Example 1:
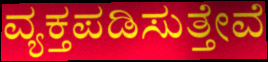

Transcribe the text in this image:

ವ್ಯಕ್ತಪಡಿಸುತ್ತೇವೆ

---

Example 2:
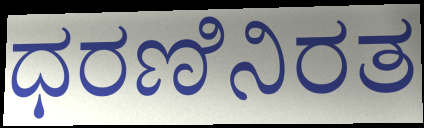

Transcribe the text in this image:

ಧರಣಿನಿರತ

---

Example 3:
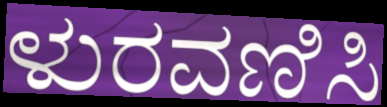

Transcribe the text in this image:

ಳುರವಣಿಸಿ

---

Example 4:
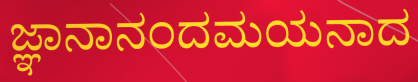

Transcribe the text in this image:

ಜ್ಞಾನಾನಂದಮಯನಾದ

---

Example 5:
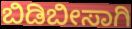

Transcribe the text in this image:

ಬಿಡಿಬೀಸಾಗಿ